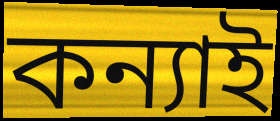
কন্যাই